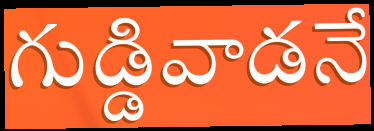
గుడ్డివాడనే